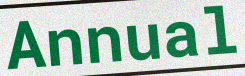
Annual